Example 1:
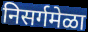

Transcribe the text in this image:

निसर्गमेळा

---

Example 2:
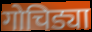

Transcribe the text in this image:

गोचिड्या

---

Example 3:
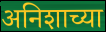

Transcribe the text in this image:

अनिशाच्या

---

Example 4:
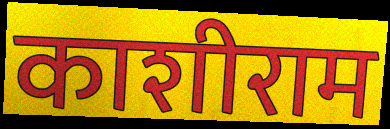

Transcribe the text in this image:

काशीराम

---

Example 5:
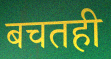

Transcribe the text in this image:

बचतही